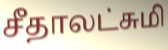
சீதாலட்சுமி